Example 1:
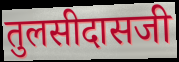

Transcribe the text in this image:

तुलसीदासजी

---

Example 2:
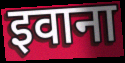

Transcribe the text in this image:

इवाना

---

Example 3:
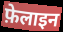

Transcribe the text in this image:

फ़ेलाइन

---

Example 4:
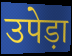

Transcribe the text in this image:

उपेड़ा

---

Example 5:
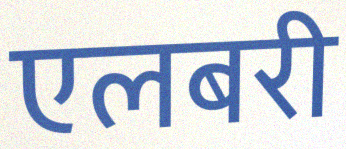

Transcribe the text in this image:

एलबरी